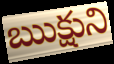
ఋక్షుని